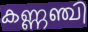
കണ്ണഞ്ചി